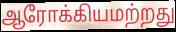
ஆரோக்கியமற்றது